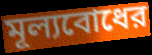
মূল্যবোধের